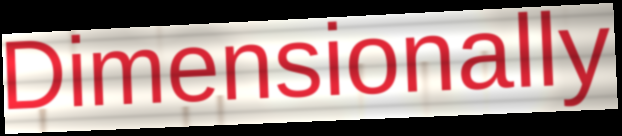
Dimensionally